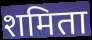
शमिता